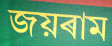
জয়ৰাম